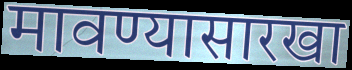
मावण्यासारखा